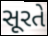
સૂરતે